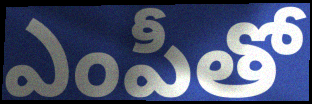
ఎంపీతో